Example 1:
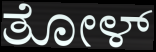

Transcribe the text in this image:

ತೋಳ್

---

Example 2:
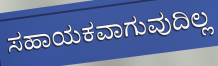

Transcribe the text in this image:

ಸಹಾಯಕವಾಗುವುದಿಲ್ಲ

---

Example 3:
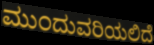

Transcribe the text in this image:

ಮುಂದುವರಿಯಲಿದೆ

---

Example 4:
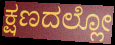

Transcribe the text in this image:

ಕ್ಷಣದಲ್ಲೋ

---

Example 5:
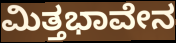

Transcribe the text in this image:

ಮಿತ್ತಭಾವೇನ